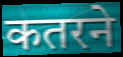
कतरने